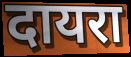
दायरा